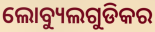
ଲୋବ୍ୟୁଲଗୁଡିକର